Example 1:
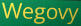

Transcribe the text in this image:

Wegovy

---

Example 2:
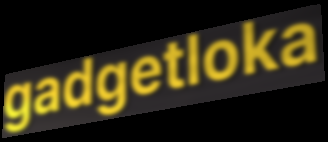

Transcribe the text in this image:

gadgetloka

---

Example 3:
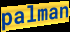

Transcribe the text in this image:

palman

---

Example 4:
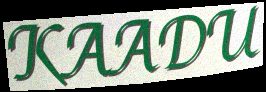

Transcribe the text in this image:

KAADU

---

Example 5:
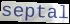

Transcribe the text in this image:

septal